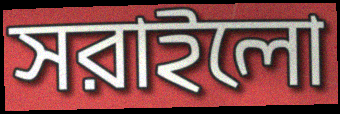
সরাইলো